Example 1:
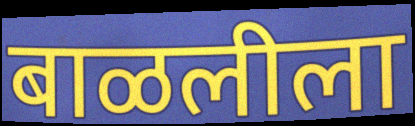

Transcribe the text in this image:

बाळलीला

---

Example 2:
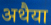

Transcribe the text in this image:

अथैया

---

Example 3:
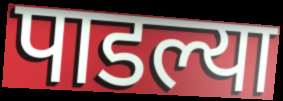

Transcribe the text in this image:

पाडल्या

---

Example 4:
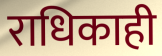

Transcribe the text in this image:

राधिकाही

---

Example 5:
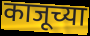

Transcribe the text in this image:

काजूच्या